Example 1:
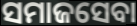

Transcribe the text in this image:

ସମାଜସେବା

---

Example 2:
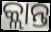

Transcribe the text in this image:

କ୍ଲାନ୍ତ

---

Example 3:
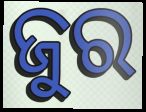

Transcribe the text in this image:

ଜୁର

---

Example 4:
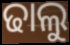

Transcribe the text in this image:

ଢାଲୁ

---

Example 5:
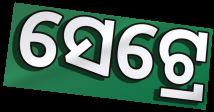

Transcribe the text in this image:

ସେଟ୍ରେ